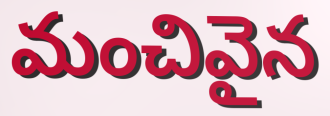
మంచివైన